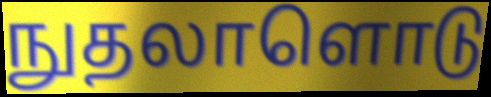
நுதலாளொடு